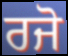
ਰਜੋ